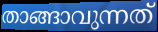
താങ്ങാവുന്നത്